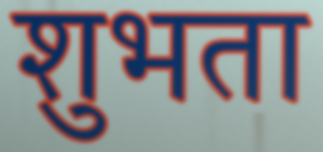
शुभता